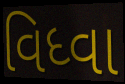
વિધ્વા